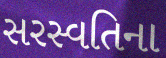
સરસ્વતિના